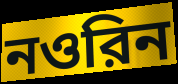
নওরিন